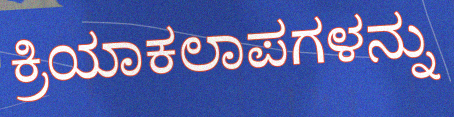
ಕ್ರಿಯಾಕಲಾಪಗಳನ್ನು